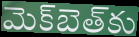
మెక్‌బెత్‌కు